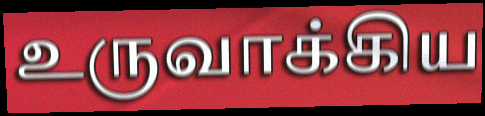
உருவாக்கிய